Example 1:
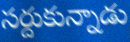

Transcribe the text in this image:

సర్దుకున్నాడు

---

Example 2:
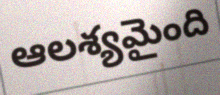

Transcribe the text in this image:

ఆలశ్యమైంది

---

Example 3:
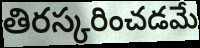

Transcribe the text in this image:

తిరస్కరించడమే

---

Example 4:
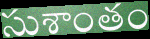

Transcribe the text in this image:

సుశాంతం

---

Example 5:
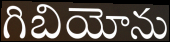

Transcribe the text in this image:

గిబియోను